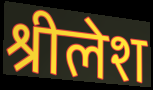
श्रीलेश